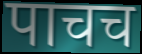
पाचच